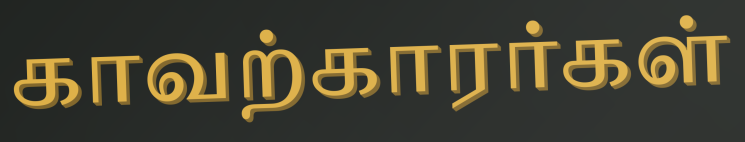
காவற்காரர்கள்